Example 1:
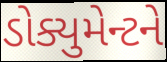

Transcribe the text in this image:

ડોક્યુમેન્ટને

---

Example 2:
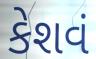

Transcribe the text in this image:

કેશવં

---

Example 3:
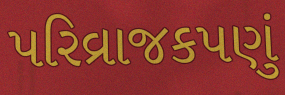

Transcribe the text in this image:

પરિવ્રાજકપણું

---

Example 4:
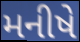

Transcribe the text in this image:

મનીષે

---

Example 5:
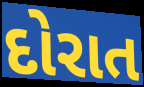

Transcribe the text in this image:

દોરાત